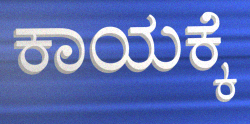
ಕಾಯಕ್ಕೆ